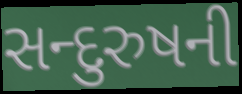
સન્દુરુષની